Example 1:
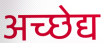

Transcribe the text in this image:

अच्छेद्य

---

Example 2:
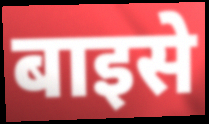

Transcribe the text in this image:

बाइसे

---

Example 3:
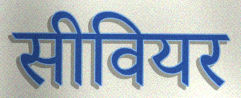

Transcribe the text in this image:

सीवियर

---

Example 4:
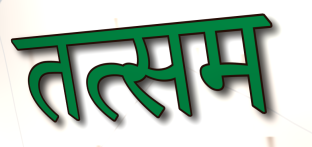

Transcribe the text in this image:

तत्सम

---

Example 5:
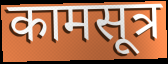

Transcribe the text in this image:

कामसूत्र